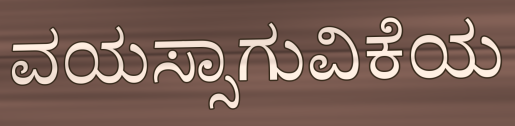
ವಯಸ್ಸಾಗುವಿಕೆಯ